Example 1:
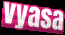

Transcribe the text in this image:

vyasa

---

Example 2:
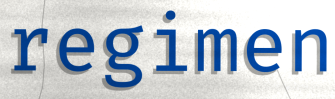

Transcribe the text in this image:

regimen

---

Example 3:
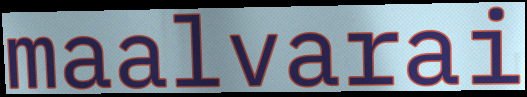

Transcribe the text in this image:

maalvarai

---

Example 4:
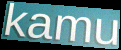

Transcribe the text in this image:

kamu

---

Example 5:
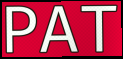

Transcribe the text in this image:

PAT